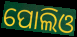
ପୋଲିଓ